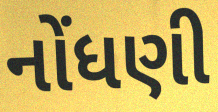
નોંધણી